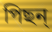
পিছন্